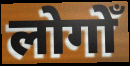
लोगोँ